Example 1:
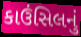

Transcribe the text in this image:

કાઉંસિલનું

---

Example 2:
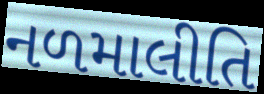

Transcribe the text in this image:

નળમાલીતિ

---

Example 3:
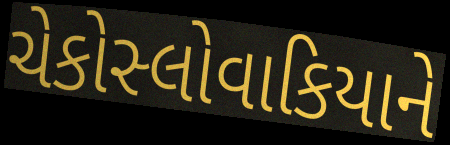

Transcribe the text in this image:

ચેકોસ્લોવાકિયાને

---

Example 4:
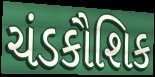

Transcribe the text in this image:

ચંડકૌશિક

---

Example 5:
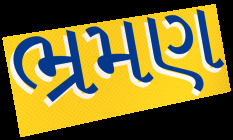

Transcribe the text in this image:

ભ્રમણ